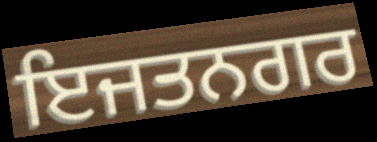
ਇਜਤਨਗਰ